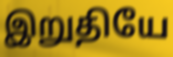
இறுதியே